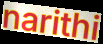
narithi